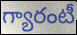
గ్యారంటీ